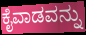
ಕೈವಾಡವನ್ನು